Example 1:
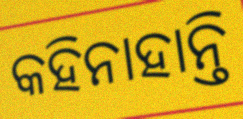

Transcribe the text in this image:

କହିନାହାନ୍ତି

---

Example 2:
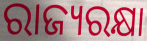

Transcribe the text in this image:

ରାଜ୍ୟରକ୍ଷା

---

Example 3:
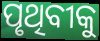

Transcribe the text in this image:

ପୃଥିବୀକୁ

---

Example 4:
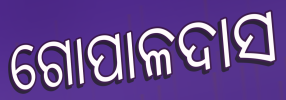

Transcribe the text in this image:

ଗୋପାଳଦାସ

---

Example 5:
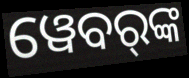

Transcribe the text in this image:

ୱେବର୍‌ଙ୍କ